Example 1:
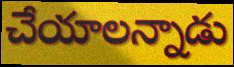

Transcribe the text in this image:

చేయాలన్నాడు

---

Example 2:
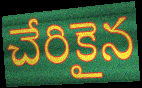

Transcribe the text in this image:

చేరికైన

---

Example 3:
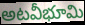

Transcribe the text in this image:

అటవీభూమి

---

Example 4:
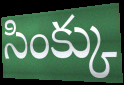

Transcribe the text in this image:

సింక్కు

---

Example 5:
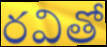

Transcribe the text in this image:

రవితో